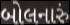
બોલનારું